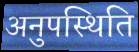
अनुपस्थिति